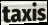
taxis